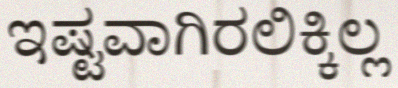
ಇಷ್ಟವಾಗಿರಲಿಕ್ಕಿಲ್ಲ